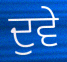
ਦੁਵੇ